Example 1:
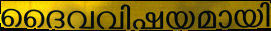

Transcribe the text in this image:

ദൈവവിഷയമായി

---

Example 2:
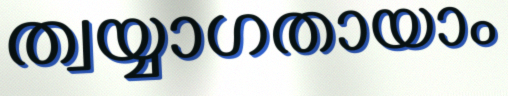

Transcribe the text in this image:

ത്വയ്യാഗതായാം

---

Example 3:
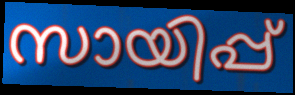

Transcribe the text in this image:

സായിപ്പ്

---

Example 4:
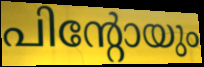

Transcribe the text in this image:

പിന്റോയും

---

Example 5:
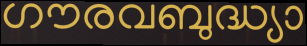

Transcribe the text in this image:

ഗൗരവബുദ്ധ്യാ